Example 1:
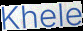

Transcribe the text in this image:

Khele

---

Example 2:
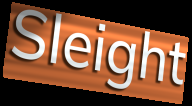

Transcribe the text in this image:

Sleight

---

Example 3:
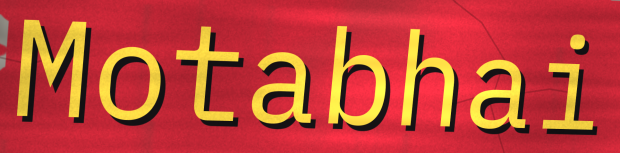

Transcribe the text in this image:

Motabhai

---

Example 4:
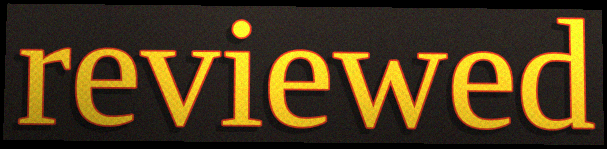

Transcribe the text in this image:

reviewed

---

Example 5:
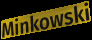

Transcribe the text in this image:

Minkowski